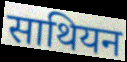
साथियन